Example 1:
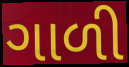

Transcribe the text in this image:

ગાળી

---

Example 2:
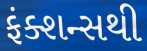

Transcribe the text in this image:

ફંક્શન્સથી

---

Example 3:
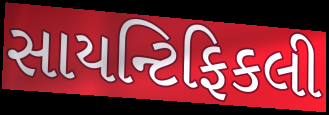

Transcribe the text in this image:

સાયન્ટિફિકલી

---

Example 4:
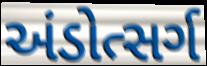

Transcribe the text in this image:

અંડોત્સર્ગ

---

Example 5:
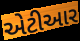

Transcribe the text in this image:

એટીઆર